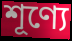
শূণ্যে